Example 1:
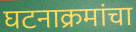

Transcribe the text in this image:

घटनाक्रमांचा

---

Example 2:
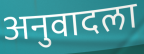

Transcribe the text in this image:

अनुवादला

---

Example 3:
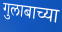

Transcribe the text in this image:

गुलाबाच्या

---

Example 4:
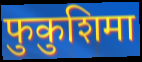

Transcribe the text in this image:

फुकुशिमा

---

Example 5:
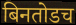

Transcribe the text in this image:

बिनतोडच